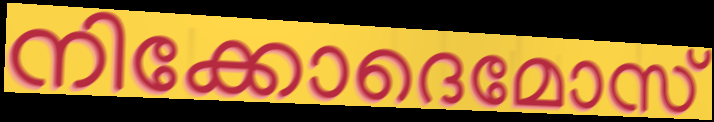
നിക്കോദെമോസ്